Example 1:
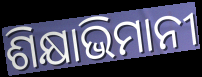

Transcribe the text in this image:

ଶିକ୍ଷାଭିମାନୀ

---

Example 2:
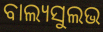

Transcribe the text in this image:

ବାଲ୍ୟସୁଲଭ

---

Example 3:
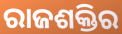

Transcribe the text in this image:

ରାଜଶକ୍ତିର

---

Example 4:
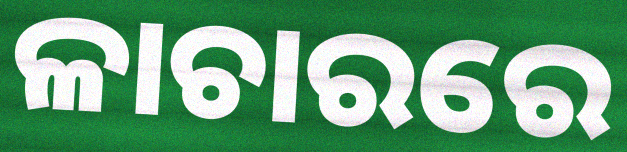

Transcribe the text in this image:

ଳାଚାରରେ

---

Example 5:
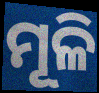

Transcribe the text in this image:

ମୂଳି